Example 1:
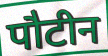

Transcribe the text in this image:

पौटीन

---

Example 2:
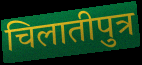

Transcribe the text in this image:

चिलातीपुत्र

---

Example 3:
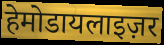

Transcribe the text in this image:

हेमोडायलाइज़र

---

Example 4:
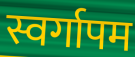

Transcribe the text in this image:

स्वर्गापम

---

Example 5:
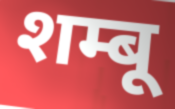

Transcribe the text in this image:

शम्बू